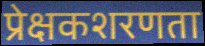
प्रेक्षकशरणता